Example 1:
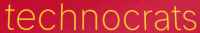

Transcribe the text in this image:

technocrats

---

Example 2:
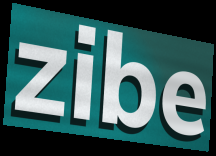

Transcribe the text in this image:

zibe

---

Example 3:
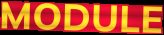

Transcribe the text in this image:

MODULE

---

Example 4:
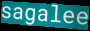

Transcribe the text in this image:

sagalee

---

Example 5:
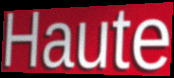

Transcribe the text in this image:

Haute